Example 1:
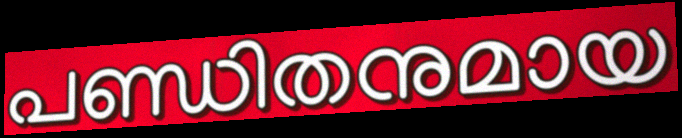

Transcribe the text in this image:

പണ്ഡിതനുമായ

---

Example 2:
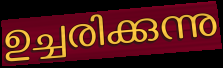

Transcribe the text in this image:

ഉച്ചരിക്കുന്നു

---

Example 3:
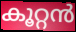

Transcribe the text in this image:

കൂറ്റൻ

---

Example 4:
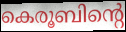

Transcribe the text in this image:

കെരൂബിന്റെ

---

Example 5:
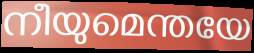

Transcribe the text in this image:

നീയുമെന്തയേ